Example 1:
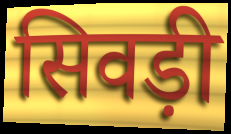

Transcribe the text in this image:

सिवड़ी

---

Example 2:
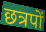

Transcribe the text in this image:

छत्रपों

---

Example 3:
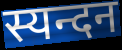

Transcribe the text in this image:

स्यन्दन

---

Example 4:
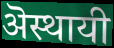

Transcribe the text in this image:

ऄस्थायी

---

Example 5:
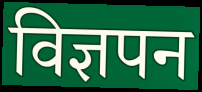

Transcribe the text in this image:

विज्ञपन